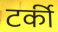
टर्की